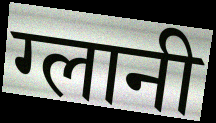
ग्लानी